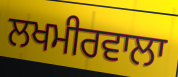
ਲਖਮੀਰਵਾਲਾ